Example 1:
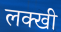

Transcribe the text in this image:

लक्खी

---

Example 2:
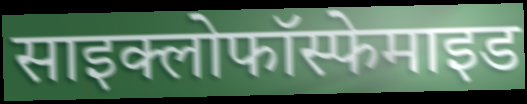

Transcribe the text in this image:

साइक्लोफॉस्फेमाइड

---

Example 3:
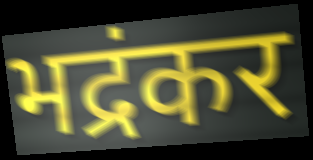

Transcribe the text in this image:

भद्रंकर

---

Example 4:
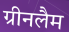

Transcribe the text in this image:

ग्रीनलैम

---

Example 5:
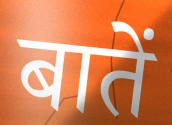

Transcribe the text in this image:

बातें